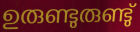
ഉരുണ്ടുരുണ്ടു്